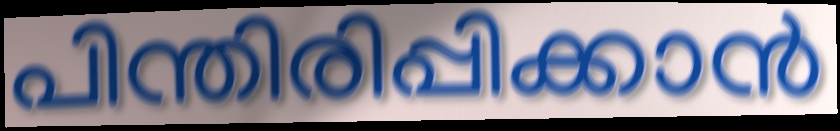
പിന്തിരിപ്പിക്കാൻ